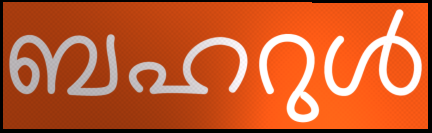
ബഹറുൾ